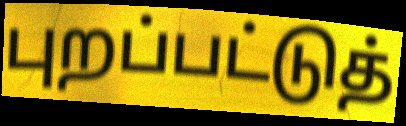
புறப்பட்டுத்